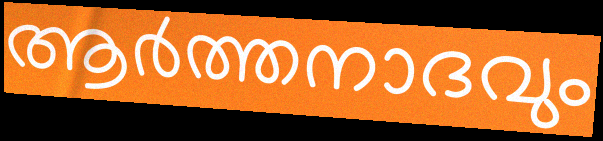
ആർത്തനാദവും